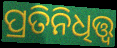
ପ୍ରତିନିଧିତ୍ତ୍ୱ